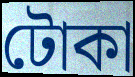
টোকা